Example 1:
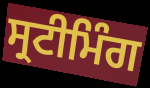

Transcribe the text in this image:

ਸ੍ਰਟੀਮਿੰਗ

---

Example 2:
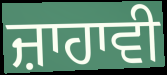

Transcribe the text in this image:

ਜ਼ਾਹਾਵੀ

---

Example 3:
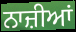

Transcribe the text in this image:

ਨਾਜ਼ੀਆਂ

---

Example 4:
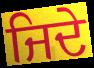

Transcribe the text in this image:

ਜਿਦੇ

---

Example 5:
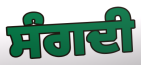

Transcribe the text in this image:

ਸੰਗਦੀ